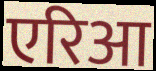
एरिआ